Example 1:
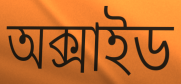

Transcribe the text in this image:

অক্সাইড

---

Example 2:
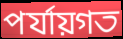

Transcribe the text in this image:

পর্যায়গত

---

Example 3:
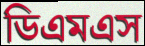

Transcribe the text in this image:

ডিএমএস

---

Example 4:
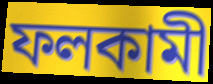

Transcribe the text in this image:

ফলকামী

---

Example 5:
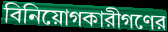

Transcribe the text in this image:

বিনিয়োগকারীগণের